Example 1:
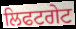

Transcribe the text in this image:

ਲਿਫਟਗੇਟ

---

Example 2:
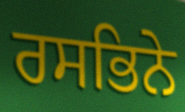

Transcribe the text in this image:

ਰਸਭਿਨੇ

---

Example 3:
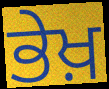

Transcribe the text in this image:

ਭੇਖ਼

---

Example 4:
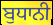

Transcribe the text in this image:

ਬੁਧਾਨੀ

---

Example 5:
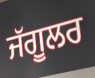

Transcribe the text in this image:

ਜੱਗੂਲਰ